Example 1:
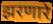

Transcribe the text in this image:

झरणारे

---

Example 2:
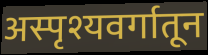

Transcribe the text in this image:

अस्पृश्यवर्गातून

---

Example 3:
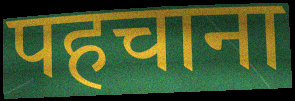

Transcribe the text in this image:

पहचाना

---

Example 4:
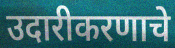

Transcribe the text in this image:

उदारीकरणाचे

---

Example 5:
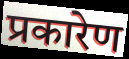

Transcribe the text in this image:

प्रकारेण